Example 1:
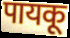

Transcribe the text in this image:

पायकू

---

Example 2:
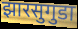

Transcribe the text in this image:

झारसुगुडा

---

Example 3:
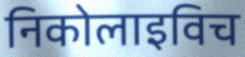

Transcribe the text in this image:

निकोलाइविच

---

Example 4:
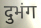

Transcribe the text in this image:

दुभंग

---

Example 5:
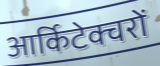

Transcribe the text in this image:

आर्किटेक्चरों